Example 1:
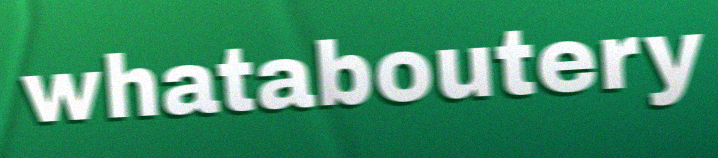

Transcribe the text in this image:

whataboutery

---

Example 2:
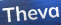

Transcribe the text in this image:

Theva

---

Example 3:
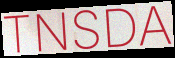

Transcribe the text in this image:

TNSDA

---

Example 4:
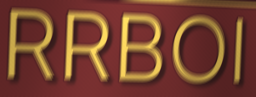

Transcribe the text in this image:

RRBOl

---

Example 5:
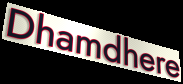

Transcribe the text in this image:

Dhamdhere